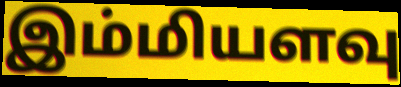
இம்மியளவு